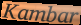
Kambar